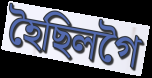
হৈছিলগৈ